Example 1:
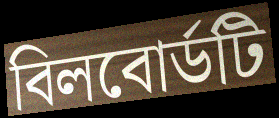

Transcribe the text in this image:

বিলবোর্ডটি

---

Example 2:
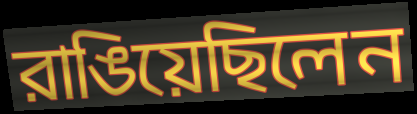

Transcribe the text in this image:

রাঙিয়েছিলেন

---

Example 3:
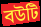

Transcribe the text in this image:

বউটি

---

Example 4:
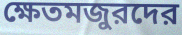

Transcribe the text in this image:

ক্ষেতমজুরদের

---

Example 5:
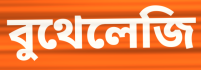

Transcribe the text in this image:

বুথেলেজি